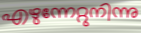
എഴുന്നേറ്റുനിന്നു